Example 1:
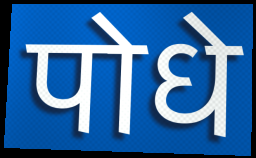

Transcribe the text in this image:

पोधे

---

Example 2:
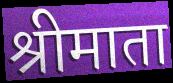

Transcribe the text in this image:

श्रीमाता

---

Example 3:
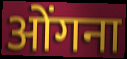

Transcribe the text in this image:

ओंगना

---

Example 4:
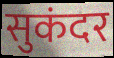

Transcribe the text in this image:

सुकंदर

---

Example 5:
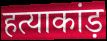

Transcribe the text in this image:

हत्याकांड़